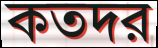
কতদর